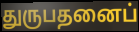
துருபதனைப்